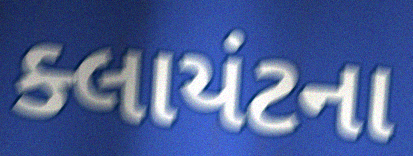
ક્લાયંટના